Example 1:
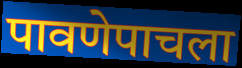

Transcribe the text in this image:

पावणेपाचला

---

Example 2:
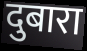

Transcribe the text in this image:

दुबारा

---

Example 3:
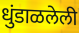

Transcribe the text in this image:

धुंडाळलेली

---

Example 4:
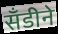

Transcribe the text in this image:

सॅंडीने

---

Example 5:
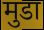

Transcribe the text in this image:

मुडा